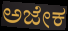
ಅಜೇಕ